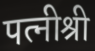
पत्नीश्री